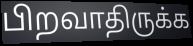
பிறவாதிருக்க